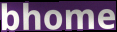
bhome